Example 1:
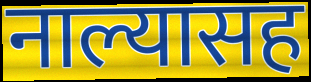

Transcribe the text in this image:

नाल्यासह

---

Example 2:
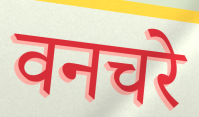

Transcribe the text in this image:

वनचरे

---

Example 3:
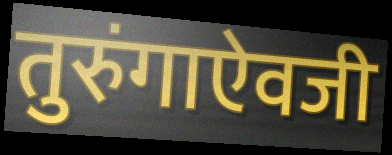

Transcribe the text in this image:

तुरुंगाऐवजी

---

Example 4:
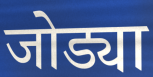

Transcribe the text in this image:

जोड्या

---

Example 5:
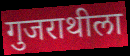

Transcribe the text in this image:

गुजराथीला